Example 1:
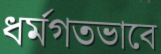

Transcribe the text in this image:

ধর্মগতভাবে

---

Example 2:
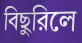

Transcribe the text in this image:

বিছুরিলে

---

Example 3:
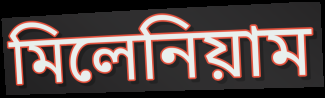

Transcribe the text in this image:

মিলেনিয়াম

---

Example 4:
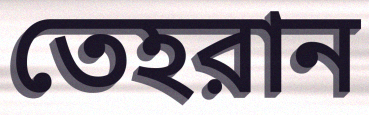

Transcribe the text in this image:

তেহরান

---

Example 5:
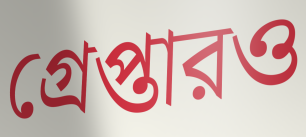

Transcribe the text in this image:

গ্রেপ্তারও